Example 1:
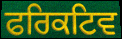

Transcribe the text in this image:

ਫਰਿਕਟਿਵ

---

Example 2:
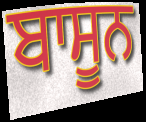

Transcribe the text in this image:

ਬਾਸੂਨ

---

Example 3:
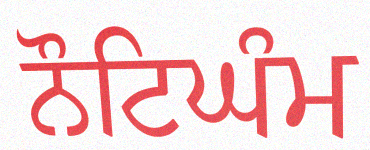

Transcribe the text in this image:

ਨੌਟਿਘੰਮ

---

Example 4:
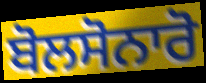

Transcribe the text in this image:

ਬੋਲਸੋਨਾਰੋ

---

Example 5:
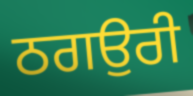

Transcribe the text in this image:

ਠਗਉਰੀ